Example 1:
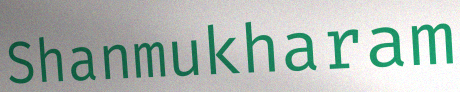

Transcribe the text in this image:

Shanmukharam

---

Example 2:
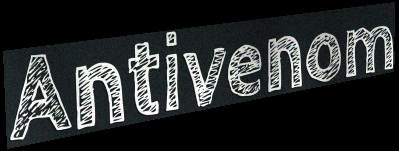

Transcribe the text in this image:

Antivenom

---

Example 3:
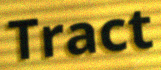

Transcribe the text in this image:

Tract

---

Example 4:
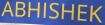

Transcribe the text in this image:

ABHISHEK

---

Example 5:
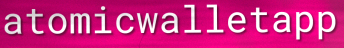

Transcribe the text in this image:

atomicwalletapp